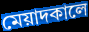
মেয়াদকালে